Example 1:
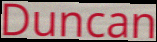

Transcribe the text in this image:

Duncan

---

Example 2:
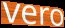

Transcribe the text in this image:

vero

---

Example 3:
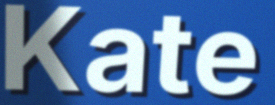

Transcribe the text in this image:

Kate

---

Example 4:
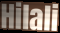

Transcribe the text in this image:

Hilali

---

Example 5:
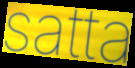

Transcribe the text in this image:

satta